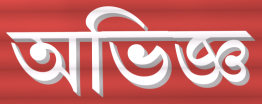
অভিজ্ঞ